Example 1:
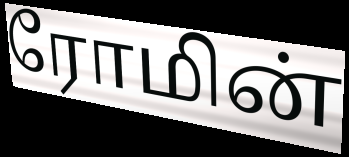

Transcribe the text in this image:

ரோமின்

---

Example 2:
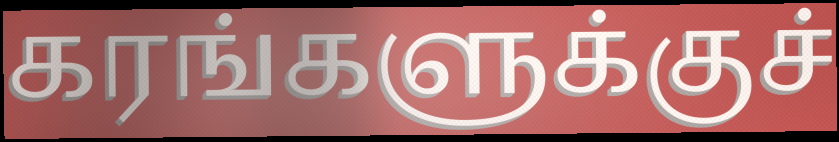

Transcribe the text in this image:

கரங்களுக்குச்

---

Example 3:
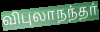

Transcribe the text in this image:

விபுலாநந்தர்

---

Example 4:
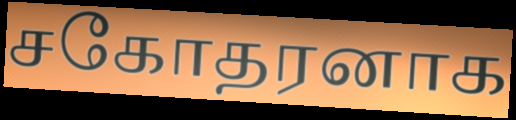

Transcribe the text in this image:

சகோதரனாக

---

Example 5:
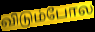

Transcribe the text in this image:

விடும்போல